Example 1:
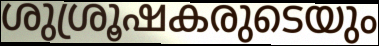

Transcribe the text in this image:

ശുശ്രൂഷകരുടെയും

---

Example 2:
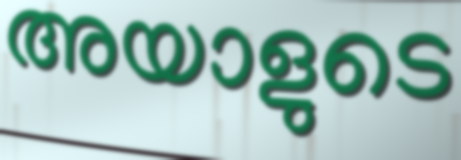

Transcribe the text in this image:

അയാളുടെ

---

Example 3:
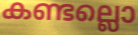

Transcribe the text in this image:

കണ്ടല്ലൊ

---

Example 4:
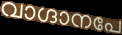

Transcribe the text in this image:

വാഗ്ദാനപേ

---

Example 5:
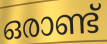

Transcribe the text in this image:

ഒരാണ്ട്